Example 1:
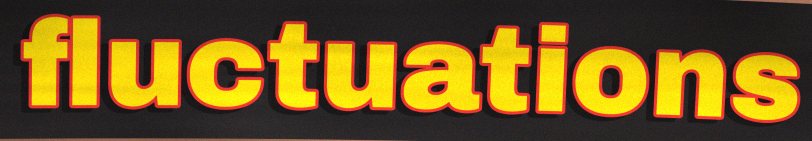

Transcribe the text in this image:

fluctuations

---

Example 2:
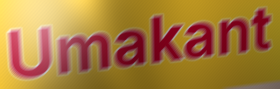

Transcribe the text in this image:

Umakant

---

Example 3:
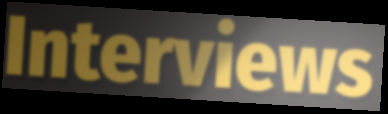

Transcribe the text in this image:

Interviews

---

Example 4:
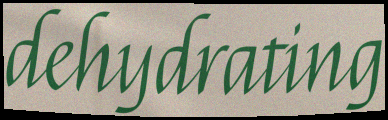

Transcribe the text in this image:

dehydrating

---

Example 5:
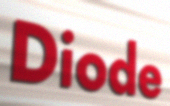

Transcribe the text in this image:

Diode